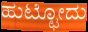
ಹುಟ್ಟೋದು